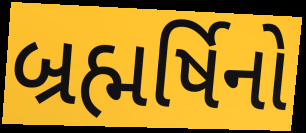
બ્રહ્મર્ષિનો